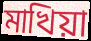
মাখিয়া